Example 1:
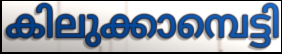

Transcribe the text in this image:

കിലുക്കാമ്പെട്ടി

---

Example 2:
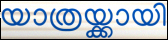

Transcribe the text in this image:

യാത്രയ്ക്കായി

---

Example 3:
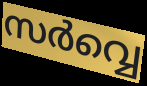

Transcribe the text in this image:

സർവ്വെ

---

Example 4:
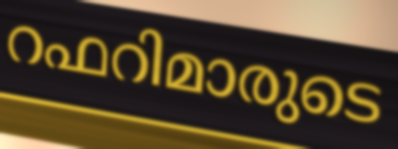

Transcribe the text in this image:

റഫറിമാരുടെ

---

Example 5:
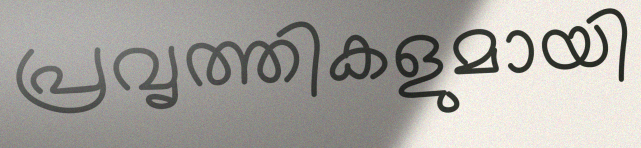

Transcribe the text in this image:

പ്രവൃത്തികളുമായി